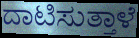
ದಾಟಿಸುತ್ತಾಳೆ